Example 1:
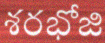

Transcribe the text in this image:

శరభోజి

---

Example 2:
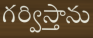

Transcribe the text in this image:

గర్విస్తాను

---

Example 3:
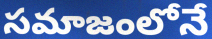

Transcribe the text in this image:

సమాజంలోనే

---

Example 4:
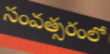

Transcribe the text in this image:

సంవత్సరంలో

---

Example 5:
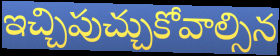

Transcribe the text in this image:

ఇచ్చిపుచ్చుకోవాల్సిన